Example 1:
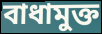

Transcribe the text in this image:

বাধামুক্ত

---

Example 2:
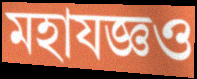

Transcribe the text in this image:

মহাযজ্ঞও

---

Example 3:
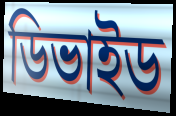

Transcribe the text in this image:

ডিভাইড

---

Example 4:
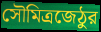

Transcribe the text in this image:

সৌমিত্রজেঠুর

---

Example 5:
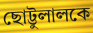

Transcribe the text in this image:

ছোট্টুলালকে